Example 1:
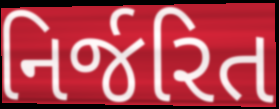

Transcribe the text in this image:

નિર્જરિત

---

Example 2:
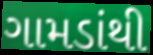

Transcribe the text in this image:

ગામડાંથી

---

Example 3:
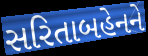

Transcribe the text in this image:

સરિતાબહેનને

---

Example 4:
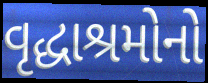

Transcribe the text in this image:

વૃદ્ધાશ્રમોનો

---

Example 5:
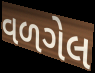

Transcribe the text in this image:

વળગેલ